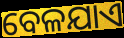
ବେଳଯାଏ